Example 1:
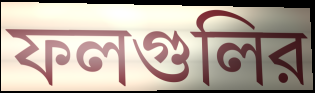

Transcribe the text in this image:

ফলগুলির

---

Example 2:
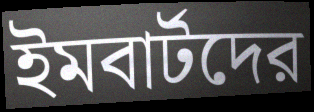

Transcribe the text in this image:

ইমবার্টদের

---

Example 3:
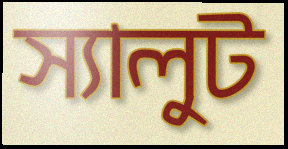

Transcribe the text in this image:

স্যালুট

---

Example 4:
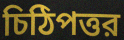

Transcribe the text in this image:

চিঠিপত্তর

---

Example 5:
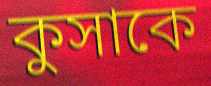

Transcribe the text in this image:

কুসাকে